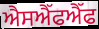
ਐਸਐੱਫਐੱਫ